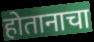
होतानाचा